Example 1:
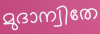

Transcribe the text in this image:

മുദാന്വിതേ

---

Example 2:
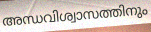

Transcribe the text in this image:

അന്ധവിശ്വാസത്തിനും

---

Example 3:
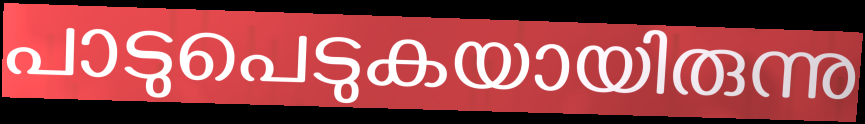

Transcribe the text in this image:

പാടുപെടുകയായിരുന്നു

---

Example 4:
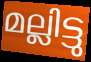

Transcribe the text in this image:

മല്ലിട്ടു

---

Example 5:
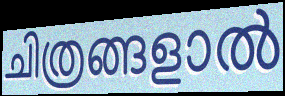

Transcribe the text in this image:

ചിത്രങ്ങളാൽ